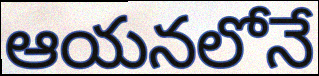
ఆయనలోనే